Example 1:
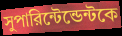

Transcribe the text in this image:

সুপারিন্টেন্ডেন্টকে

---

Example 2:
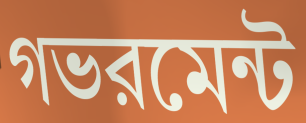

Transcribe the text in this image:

গভরমেন্ট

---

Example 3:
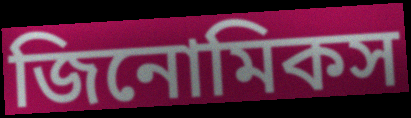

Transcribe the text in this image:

জিনোমিকস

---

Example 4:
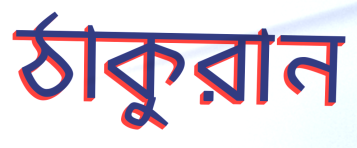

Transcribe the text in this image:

ঠাকুরান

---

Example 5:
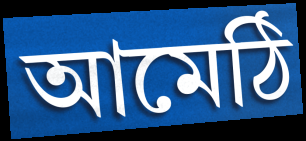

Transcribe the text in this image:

আমেঠি